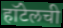
हॉटेलची